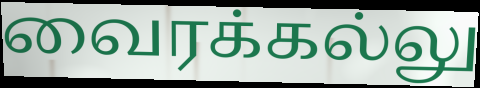
வைரக்கல்லு